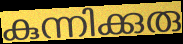
കുന്നിക്കുരു